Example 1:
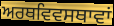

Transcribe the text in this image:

ਅਰਥਵਿਵਸਥਾਵਾਂ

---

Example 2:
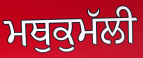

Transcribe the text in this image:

ਮਥੁਕੁਮੱਲੀ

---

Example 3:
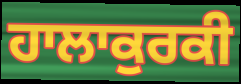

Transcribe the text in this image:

ਹਾਲਾਕੁਰਕੀ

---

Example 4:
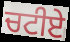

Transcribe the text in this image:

ਚਟੀਏ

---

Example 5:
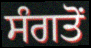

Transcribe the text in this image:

ਸੰਗਤੋਂ